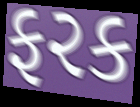
ફરક